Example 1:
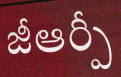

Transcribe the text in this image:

జీఆర్పీ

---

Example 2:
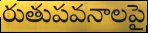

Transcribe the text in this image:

రుతుపవనాలపై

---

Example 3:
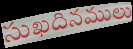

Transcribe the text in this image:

సుఖదినములు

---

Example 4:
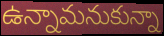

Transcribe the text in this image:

ఉన్నామనుకున్నా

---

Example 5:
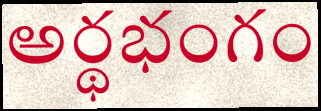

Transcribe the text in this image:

అర్థభంగం